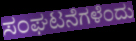
ಸಂಘಟನೆಗಳೆಂದು